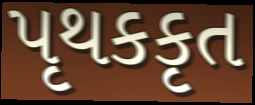
પૃથકકૃત